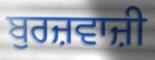
ਬੁਰਜ਼ਵਾਜ਼ੀ